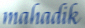
mahadik